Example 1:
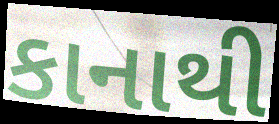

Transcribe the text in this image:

કાનાથી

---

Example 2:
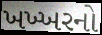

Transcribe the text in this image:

ખખ્ખરનો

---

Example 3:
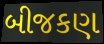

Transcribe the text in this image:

બીજકણ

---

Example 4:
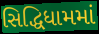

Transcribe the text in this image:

સિદ્ધિધામમાં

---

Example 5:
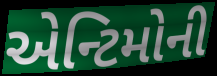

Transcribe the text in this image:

એન્ટિમોની